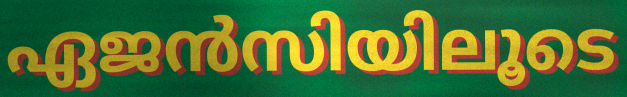
ഏജൻസിയിലൂടെ